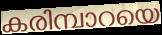
കരിമ്പാറയെ